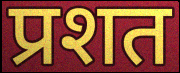
प्रशत